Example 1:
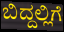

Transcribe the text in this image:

ಬಿದ್ದಲ್ಲಿಗೆ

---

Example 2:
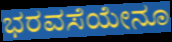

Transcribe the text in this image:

ಭರವಸೆಯೇನೂ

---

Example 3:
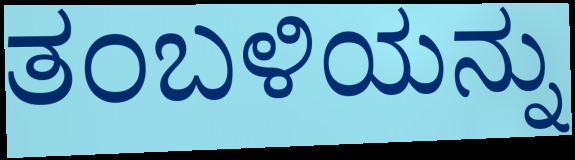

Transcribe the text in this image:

ತಂಬಳಿಯನ್ನು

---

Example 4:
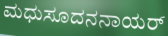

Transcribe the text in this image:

ಮಧುಸೂದನನಾಯರ್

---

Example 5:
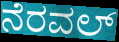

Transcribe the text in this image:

ನೆರವಲ್